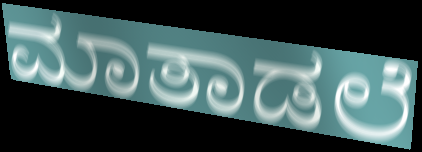
ಮಾತಾಡಲೆ